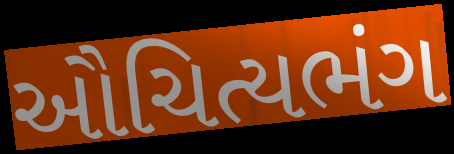
ઔચિત્યભંગ